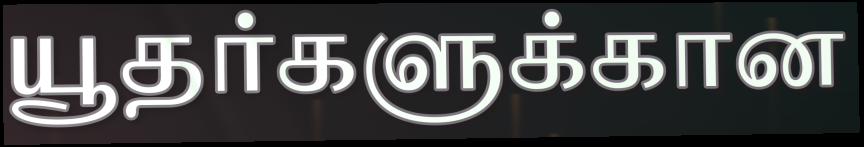
யூதர்களுக்கான